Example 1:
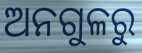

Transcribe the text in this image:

ଅନଗୁଳରୁ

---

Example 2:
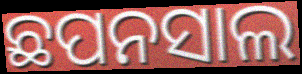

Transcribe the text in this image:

ଛପନସାଲ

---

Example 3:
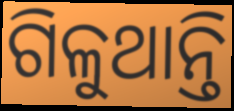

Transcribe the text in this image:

ଗିଳୁଥାନ୍ତି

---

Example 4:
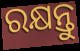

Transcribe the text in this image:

ରକ୍ଷନ୍ତୁ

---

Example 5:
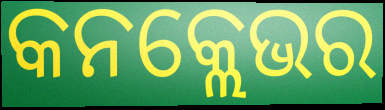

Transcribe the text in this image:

କନକ୍ଲେଭର